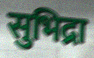
सुभिद्रा